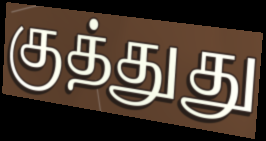
குத்துது